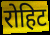
रोहिट